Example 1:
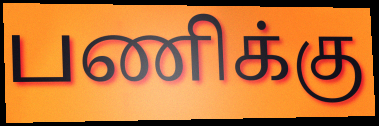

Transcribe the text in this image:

பணிக்கு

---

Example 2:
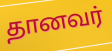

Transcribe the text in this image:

தானவர்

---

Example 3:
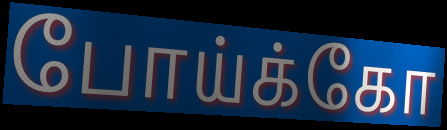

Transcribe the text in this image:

போய்க்கோ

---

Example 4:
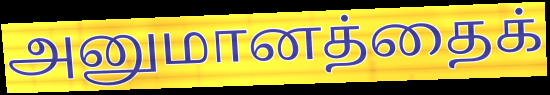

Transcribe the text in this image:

அனுமானத்தைக்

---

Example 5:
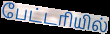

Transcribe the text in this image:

பேட்டரியில்